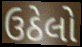
ઉઠેલો